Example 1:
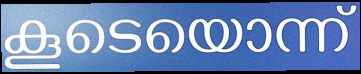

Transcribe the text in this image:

കൂടെയൊന്ന്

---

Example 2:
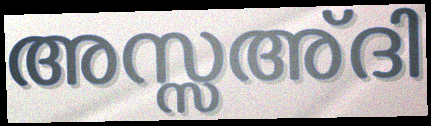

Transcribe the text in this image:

അസ്സഅ്ദി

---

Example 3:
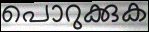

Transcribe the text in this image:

പൊറുക്കുക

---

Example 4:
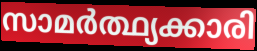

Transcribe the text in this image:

സാമർത്ഥ്യക്കാരി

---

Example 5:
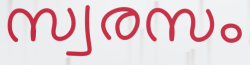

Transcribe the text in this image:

സ്വരസം